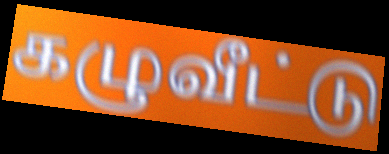
கழுவீட்டு